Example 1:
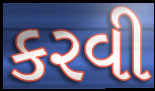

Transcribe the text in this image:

કરવી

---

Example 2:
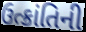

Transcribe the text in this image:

ઉત્ક્રાંતિની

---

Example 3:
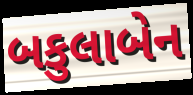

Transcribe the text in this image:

બકુલાબેન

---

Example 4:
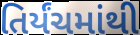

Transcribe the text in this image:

તિર્યંચમાંથી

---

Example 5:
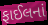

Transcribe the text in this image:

ફાઈલનાં